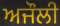
ਅਜੌਲੀ